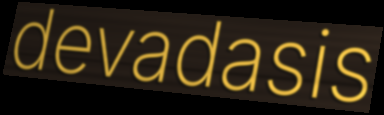
devadasis